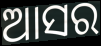
ଆସର